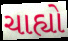
ચાહ્યો